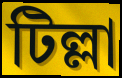
টিল্লা